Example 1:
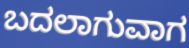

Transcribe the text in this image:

ಬದಲಾಗುವಾಗ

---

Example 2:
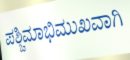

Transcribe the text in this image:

ಪಶ್ಚಿಮಾಭಿಮುಖವಾಗಿ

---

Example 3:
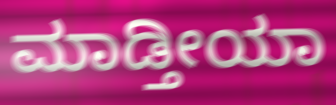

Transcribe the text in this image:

ಮಾಡ್ತೀಯಾ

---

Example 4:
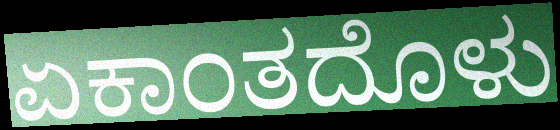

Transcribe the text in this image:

ಏಕಾಂತದೊಳು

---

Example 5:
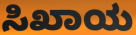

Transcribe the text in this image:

ಸಿಖಾಯ